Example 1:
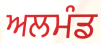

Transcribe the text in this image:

ਅਲਮੰਡ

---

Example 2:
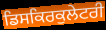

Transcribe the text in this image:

ਡਿਸਕਿਰਕੁਲੇਟਰੀ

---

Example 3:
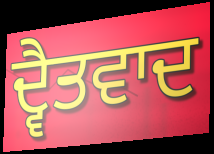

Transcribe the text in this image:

ਦ੍ਵੈਤਵਾਦ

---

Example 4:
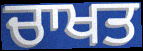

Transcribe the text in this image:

ਚਾਖਤ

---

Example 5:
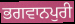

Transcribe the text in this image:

ਭਗਵਾਨਪੁਰੀ